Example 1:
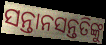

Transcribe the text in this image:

ସନ୍ତାନସନ୍ତତିଙ୍କୁ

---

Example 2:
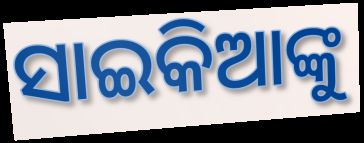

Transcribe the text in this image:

ସାଇକିଆଙ୍କୁ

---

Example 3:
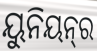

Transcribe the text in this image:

ୟୁନିୟନ୍‌ର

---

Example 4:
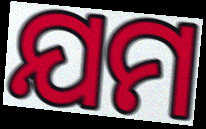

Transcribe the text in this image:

ଯମ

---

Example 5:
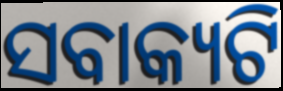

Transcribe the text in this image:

ସବାକ୍ୟଟି